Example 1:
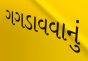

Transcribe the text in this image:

ગગડાવવાનું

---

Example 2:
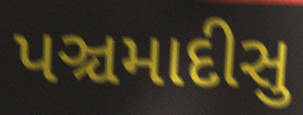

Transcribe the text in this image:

પઞ્ચમાદીસુ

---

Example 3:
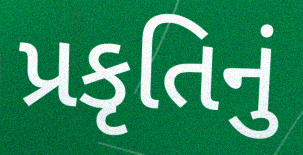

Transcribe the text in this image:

પ્રકૃતિનું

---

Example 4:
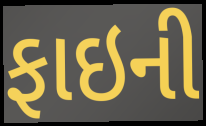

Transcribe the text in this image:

ફાઇની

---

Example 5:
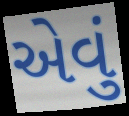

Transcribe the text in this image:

એવું